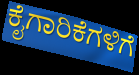
ಕೈಗಾರಿಕೆಗಳಿಗೆ